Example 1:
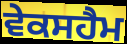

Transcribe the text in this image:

ਵੇਕਸਹੈਮ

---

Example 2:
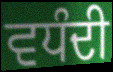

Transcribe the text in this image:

ਵਧੰਦੀ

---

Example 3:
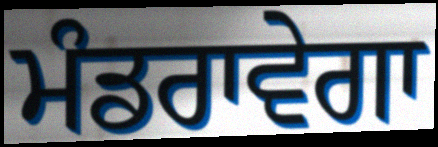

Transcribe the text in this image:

ਮੰਡਰਾਵੇਗਾ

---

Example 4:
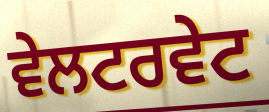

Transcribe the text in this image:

ਵੇਲਟਰਵੇਟ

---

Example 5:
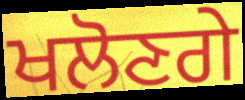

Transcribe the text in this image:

ਖਲੋਣਗੇ